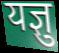
यज्ञु